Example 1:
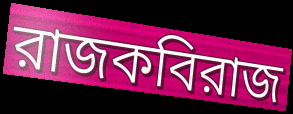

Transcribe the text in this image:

রাজকবিরাজ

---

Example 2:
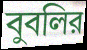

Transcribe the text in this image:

বুবলির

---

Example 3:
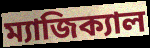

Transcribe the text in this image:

ম্যাজিক্যাল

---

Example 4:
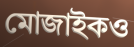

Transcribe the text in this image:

মোজাইকও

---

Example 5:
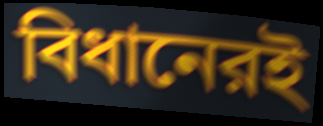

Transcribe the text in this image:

বিধানেরই